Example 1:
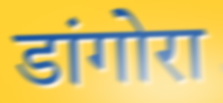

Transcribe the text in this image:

डांगोरा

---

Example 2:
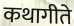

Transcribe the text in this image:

कथागीते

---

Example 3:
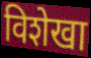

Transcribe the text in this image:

विशेखा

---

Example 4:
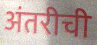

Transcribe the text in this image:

अंतरीची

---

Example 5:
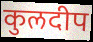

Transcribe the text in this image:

कुलदीप